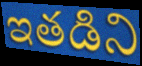
ఇతడిని